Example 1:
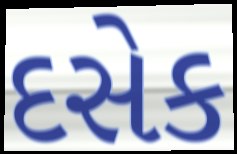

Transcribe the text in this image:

દસેક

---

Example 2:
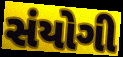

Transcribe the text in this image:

સંયોગી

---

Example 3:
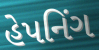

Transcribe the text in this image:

હેપનિંગ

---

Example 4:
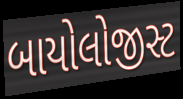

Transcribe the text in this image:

બાયોલોજીસ્ટ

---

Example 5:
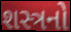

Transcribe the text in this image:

શસ્ત્રનો